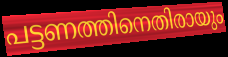
പട്ടണത്തിനെതിരായും